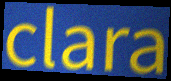
clara